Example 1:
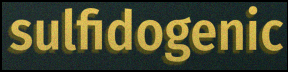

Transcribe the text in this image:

sulfidogenic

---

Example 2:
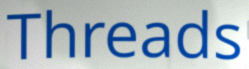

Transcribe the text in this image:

Threads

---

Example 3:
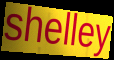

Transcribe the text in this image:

shelley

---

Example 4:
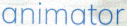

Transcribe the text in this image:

animator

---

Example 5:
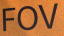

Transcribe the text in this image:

FOV